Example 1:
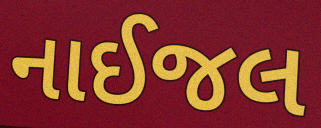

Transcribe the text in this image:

નાઈજલ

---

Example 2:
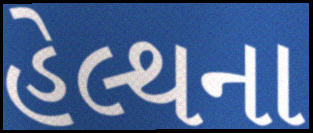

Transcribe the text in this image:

હેલ્થના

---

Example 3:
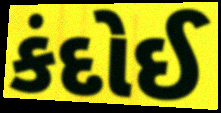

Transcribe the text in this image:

કંદોઈ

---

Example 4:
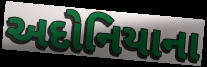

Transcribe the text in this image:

અદોનિયાના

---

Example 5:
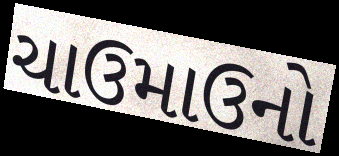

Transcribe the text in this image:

ચાઉમાઉનો